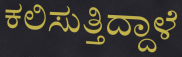
ಕಲಿಸುತ್ತಿದ್ದಾಳೆ